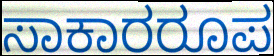
ಸಾಕಾರರೂಪ